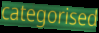
categorised